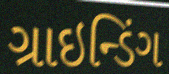
ગ્રાઇન્ડિંગ